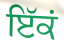
ਇੱਕਂ